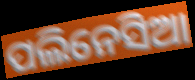
ପଲିନେସିଆ